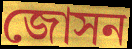
জোসন